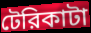
টেরিকাটা